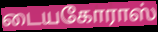
டையகோராஸ்